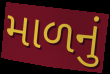
માળનું